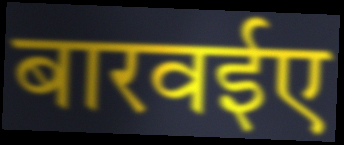
बारवईए